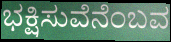
ಭಕ್ಷಿಸುವೆನೆಂಬವ